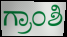
ಗ್ರಾಂಶಿ